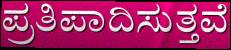
ಪ್ರತಿಪಾದಿಸುತ್ತವೆ